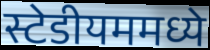
स्टेडीयममध्ये